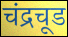
चंद्रचूड